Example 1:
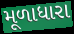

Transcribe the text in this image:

મૂળાધારા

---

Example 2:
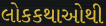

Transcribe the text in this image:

લોકકથાઓથી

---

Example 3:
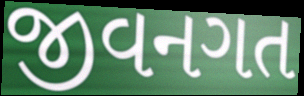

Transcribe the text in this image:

જીવનગત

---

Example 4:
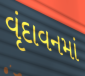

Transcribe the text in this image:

વૃંદાવનમાં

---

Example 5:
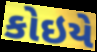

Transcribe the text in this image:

કોઇયે